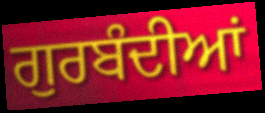
ਗੁਰਬੰਦੀਆਂ